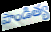
పాండిత్య